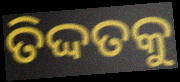
ତିଦ୍ଦତକୁ